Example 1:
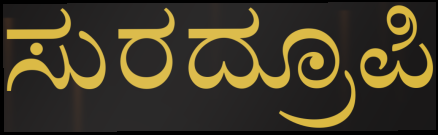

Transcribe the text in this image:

ಸುರದ್ರೂಪಿ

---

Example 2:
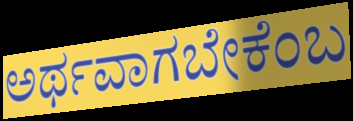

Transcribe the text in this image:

ಅರ್ಥವಾಗಬೇಕೆಂಬ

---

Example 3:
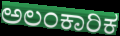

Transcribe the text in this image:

ಅಲಂಕಾರಿಕ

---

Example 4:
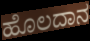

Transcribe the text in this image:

ಹೊಲದಾನ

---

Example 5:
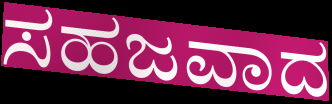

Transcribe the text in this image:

ಸಹಜವಾದ